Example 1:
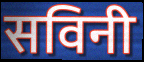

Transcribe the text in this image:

सविनी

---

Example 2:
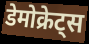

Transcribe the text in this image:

डेमोक्रेट्स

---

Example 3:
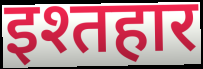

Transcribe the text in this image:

इश्तहार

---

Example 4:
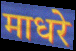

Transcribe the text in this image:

माधरे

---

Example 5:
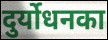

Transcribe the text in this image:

दुर्योधनका